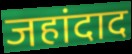
जहांदाद